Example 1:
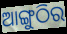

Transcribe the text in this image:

ଆଙ୍ଗୁଠିର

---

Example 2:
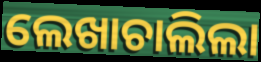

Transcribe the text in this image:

ଲେଖାଚାଲିଲା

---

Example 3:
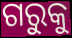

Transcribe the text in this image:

ଗରୁକୁ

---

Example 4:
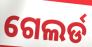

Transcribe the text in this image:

ଗେଲର୍ଡ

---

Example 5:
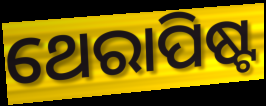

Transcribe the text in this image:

ଥେରାପିଷ୍ଟ